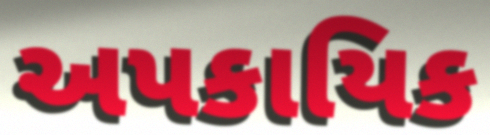
અપકાયિક